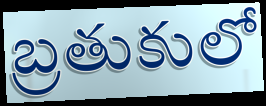
బ్రతుకులో